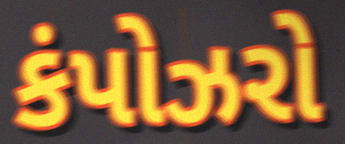
કંપોઝરો